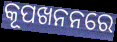
କୂପଖନନରେ